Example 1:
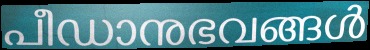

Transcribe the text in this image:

പീഡാനുഭവങ്ങൾ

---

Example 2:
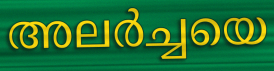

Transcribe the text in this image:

അലർച്ചയെ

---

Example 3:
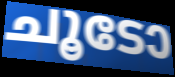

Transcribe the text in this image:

ചൂടോ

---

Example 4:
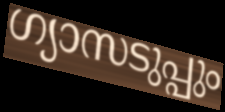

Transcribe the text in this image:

ഗ്യാസടുപ്പും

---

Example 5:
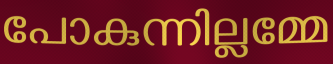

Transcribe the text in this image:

പോകുന്നില്ലമ്മേ